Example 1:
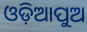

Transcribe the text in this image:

ଓଡ଼ିଆପୁଅ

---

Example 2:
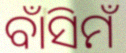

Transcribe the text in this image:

ବାଁସିମଁ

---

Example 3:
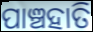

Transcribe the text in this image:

ପାଞ୍ଚହାତି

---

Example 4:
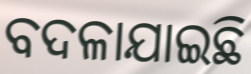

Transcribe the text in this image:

ବଦଳାଯାଇଛି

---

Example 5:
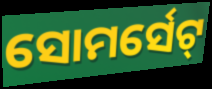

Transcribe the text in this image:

ସୋମର୍ସେଟ୍